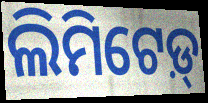
ଲିମିଟେଡ଼୍